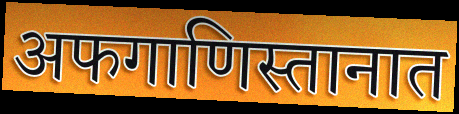
अफगाणिस्तानात